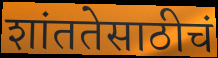
शांततेसाठीचं